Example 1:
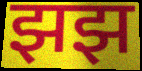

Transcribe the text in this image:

झझ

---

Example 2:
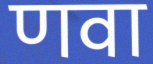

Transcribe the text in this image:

णवा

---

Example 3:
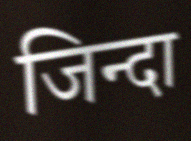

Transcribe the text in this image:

जिन्‍दा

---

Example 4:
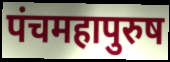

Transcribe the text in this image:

पंचमहापुरुष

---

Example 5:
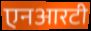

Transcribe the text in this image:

एनआरटी